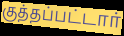
குத்தப்பட்டார்